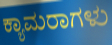
ಕ್ಯಾಮರಾಗಳು